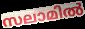
സലാമിൽ